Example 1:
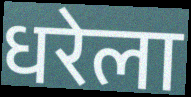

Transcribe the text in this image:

धरेला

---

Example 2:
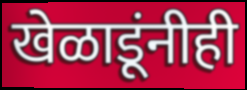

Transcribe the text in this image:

खेळाडूंनीही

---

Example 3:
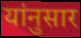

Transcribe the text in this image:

यांनुसार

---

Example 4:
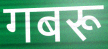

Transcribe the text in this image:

गबरू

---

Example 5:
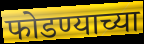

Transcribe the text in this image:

फोडण्याच्या